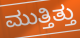
ಮುತ್ತಿತ್ತು